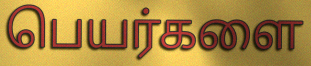
பெயர்களை